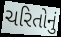
ચરિતોનું